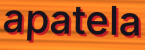
apatela